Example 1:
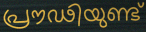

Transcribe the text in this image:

പ്രൗഢിയുണ്ട്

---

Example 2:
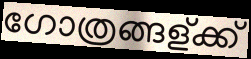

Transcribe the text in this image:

ഗോത്രങ്ങള്ക്ക്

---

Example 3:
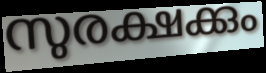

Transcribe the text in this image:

സുരക്ഷക്കും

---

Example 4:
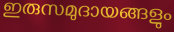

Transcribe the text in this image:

ഇരുസമുദായങ്ങളും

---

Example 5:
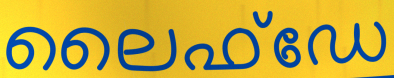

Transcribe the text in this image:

ലൈഫ്ഡേ